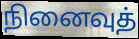
நினைவுத்